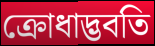
ক্রোধাদ্ভবতি